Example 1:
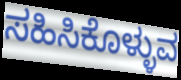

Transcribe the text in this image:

ಸಹಿಸಿಕೊಳ್ಳುವ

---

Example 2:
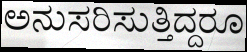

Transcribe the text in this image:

ಅನುಸರಿಸುತ್ತಿದ್ದರೂ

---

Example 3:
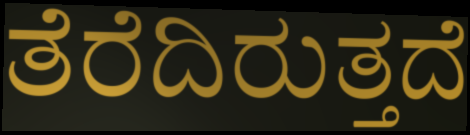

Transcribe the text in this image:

ತೆರೆದಿರುತ್ತದೆ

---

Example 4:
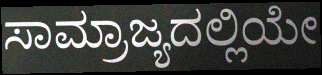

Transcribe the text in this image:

ಸಾಮ್ರಾಜ್ಯದಲ್ಲಿಯೇ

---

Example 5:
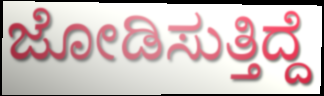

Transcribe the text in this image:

ಜೋಡಿಸುತ್ತಿದ್ದೆ